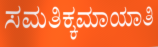
ಸಮತಿಕ್ಕಮಾಯಾತಿ